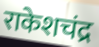
राकेशचंद्र